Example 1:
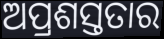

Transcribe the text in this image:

ଅପ୍ରଶସ୍ତତାର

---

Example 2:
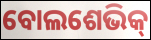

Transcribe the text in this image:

ବୋଲଶେଭିକ୍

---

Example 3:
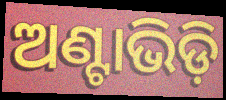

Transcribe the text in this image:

ଅଣ୍ଟାଭିଡ଼ି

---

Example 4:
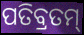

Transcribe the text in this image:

ପତିବ୍ରତମ୍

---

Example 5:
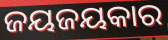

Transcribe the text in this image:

ଜୟଜୟକାର